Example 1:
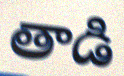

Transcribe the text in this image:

తాడి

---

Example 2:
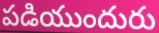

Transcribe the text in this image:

పడియుందురు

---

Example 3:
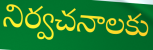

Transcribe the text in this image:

నిర్వచనాలకు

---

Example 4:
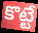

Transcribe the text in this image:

కొట్టే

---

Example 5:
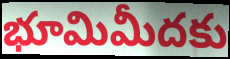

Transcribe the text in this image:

భూమిమీదకు